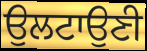
ਉਲਟਾਉਣੀ